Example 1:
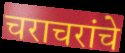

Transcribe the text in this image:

चराचरांचे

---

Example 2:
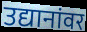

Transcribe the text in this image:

उद्यानांवर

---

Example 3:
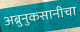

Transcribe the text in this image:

अब्रुनुकसानीचा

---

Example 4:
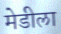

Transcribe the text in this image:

मेडीला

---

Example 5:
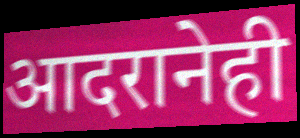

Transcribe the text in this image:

आदरानेही